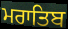
ਮਰਾਤਿਬ